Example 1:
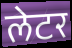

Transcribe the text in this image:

लेटर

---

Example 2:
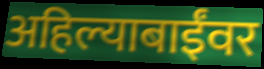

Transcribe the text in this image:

अहिल्याबाईंवर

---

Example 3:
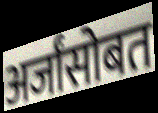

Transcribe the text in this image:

अर्जांसोबत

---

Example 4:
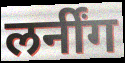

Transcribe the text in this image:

लर्नींग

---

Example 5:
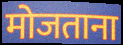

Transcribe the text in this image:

मोजताना